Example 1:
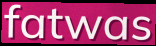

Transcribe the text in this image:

fatwas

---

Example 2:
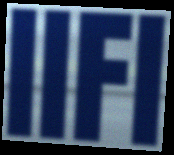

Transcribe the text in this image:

IIFI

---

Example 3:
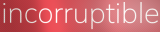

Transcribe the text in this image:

incorruptible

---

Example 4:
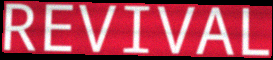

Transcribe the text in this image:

REVIVAL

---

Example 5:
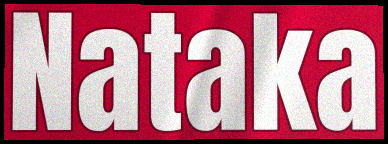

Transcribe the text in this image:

Nataka